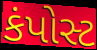
કંપોસ્ટ